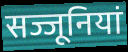
सज्जूनियां